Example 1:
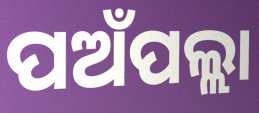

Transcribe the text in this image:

ପଅଁପଲ୍ଲା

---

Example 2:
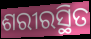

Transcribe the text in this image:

ଶରୀରସ୍ଥିତ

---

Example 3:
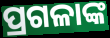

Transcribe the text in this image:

ପ୍ରଗଳାଙ୍କ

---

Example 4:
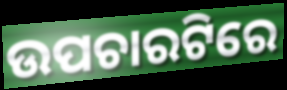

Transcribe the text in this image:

ଉପଚାରଟିରେ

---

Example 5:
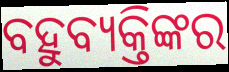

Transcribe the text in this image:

ବହୁବ୍ୟକ୍ତିଙ୍କର